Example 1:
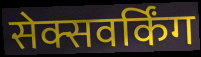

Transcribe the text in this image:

सेक्सवर्किंग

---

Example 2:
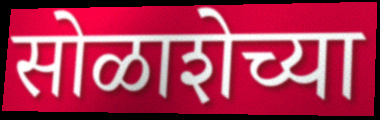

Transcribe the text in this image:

सोळाशेच्या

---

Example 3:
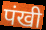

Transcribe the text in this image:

पंखी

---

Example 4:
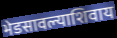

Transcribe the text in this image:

भेडसावल्याशिवाय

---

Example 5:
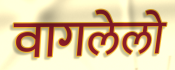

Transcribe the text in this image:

वागलेलो